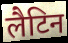
लैटिन